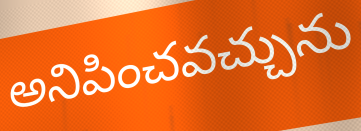
అనిపించవచ్చును